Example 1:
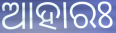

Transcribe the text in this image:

ଆହାରଃ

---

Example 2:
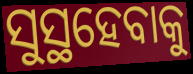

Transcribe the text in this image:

ସୁସ୍ଥହେବାକୁ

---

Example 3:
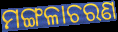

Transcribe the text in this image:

ମଙ୍ଗଳାଚରଣ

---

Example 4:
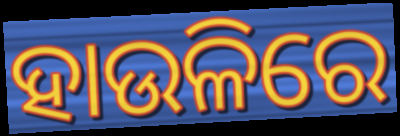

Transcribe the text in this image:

ହାଉଳିରେ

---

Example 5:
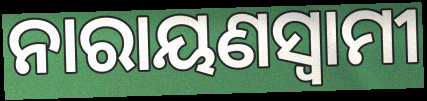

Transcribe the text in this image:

ନାରାୟଣସ୍ଵାମୀ